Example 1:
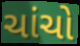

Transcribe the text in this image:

ચાંચો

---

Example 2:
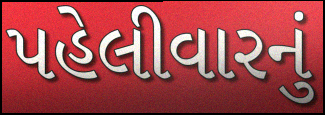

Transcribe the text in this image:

પહેલીવારનું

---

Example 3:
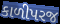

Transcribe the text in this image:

કાળીપરજ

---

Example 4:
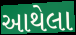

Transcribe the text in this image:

આથેલા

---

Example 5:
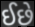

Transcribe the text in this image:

ઈછે